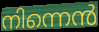
നിന്നെൻ